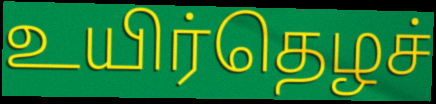
உயிர்தெழச்